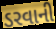
ડરવાની